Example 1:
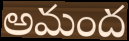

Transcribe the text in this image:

అమంద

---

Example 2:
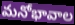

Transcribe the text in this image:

మనోభావాల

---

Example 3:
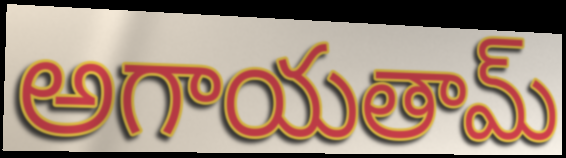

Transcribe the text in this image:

అగాయతామ్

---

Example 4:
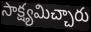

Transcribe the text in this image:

సాక్ష్యమిచ్చారు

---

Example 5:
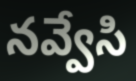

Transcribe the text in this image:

నవ్వేసి